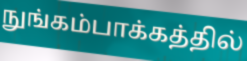
நுங்கம்பாக்கத்தில்